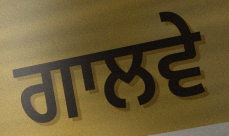
ਗਾਲਵੇ